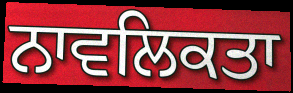
ਨਾਵਲਿਕਤਾ